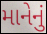
માનેનું